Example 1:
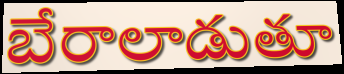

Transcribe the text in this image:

బేరాలాడుతూ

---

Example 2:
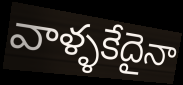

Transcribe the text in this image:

వాళ్ళకేదైనా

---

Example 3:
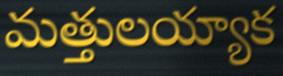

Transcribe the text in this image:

మత్తులయ్యాక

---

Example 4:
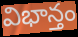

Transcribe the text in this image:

విభాన్తం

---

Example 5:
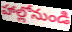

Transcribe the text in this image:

హాల్లోనుండి